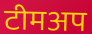
टीमअप